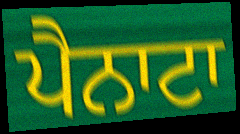
ਪੈਨਾਟਾ